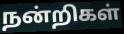
நன்றிகள்